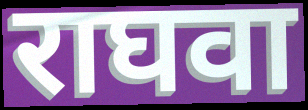
राघवा